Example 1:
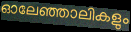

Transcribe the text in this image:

ഓലേഞ്ഞാലികളും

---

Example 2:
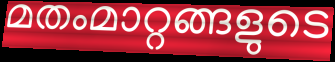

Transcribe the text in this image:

മതംമാറ്റങ്ങളുടെ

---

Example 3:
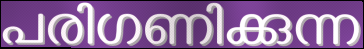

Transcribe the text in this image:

പരിഗണിക്കുന്ന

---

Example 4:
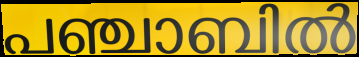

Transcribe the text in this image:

പഞ്ചാബിൽ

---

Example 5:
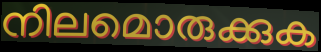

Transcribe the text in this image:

നിലമൊരുക്കുക